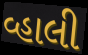
વ્હાલી